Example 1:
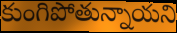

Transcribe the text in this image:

కుంగిపోతున్నాయని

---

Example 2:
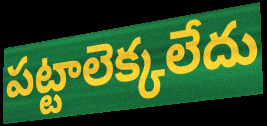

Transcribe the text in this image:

పట్టాలెక్కలేదు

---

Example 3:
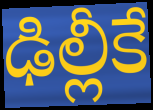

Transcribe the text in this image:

ఢిల్లీకే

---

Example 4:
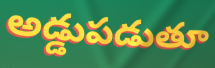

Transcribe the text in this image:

అడ్డుపడుతూ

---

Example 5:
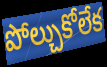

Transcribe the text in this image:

పోల్చుకోలేక